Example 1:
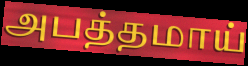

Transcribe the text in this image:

அபத்தமாய்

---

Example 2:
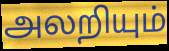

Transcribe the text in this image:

அலறியும்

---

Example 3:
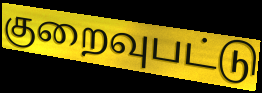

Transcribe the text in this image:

குறைவுபட்டு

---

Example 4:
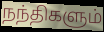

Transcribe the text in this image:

நந்திகளும்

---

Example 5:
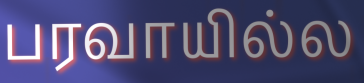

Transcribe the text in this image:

பரவாயில்ல